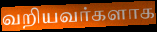
வறியவர்களாக